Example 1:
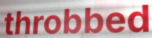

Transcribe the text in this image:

throbbed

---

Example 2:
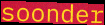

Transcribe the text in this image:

soonder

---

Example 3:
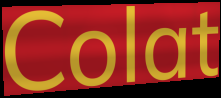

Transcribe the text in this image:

Colat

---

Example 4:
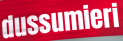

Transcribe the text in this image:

dussumieri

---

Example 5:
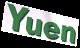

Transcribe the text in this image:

Yuen